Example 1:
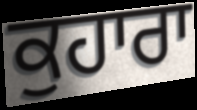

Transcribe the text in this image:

ਕੁਹਾਰਾ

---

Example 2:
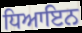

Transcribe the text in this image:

ਧਿਆਇਨ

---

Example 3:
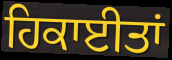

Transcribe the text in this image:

ਹਿਕਾਈਤਾਂ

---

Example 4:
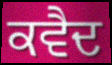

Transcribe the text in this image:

ਕਵੈਦ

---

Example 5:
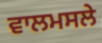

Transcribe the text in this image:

ਵਾਲਮਸਲੇ